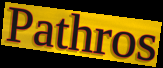
Pathros